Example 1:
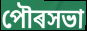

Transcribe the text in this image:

পৌৰসভা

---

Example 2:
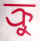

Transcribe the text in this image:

ক্ৰু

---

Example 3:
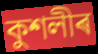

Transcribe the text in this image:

কুশলীৰ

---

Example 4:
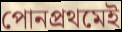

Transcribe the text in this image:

পোনপ্ৰথমেই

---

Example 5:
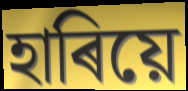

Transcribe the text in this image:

হাৰিয়ে